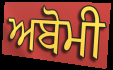
ਅਬੋਮੀ